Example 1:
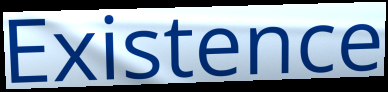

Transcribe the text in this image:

Existence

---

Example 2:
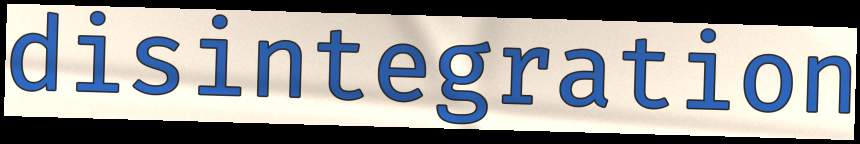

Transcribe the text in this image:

disintegration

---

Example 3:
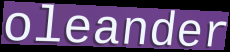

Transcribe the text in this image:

oleander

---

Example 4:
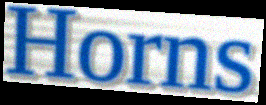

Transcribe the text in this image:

Horns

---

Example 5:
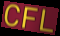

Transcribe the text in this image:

CFL